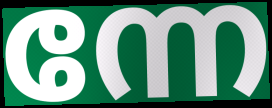
ന്നേ